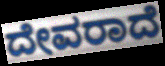
ದೇವರಾದೆ